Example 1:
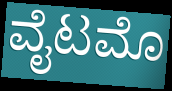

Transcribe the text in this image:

ವೈಟಮೊ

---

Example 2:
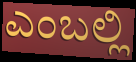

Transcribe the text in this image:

ಎಂಬಲ್ಲಿ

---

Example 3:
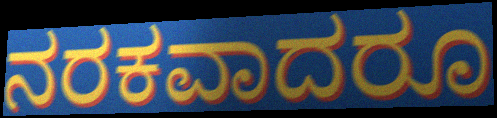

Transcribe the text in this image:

ನರಕವಾದರೂ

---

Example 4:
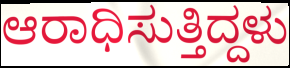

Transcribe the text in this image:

ಆರಾಧಿಸುತ್ತಿದ್ದಳು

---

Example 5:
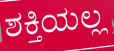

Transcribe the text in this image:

ಶಕ್ತಿಯಲ್ಲ